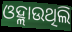
ଓହ୍ଲାଉଥିଲି